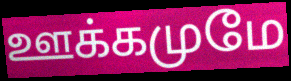
ஊக்கமுமே